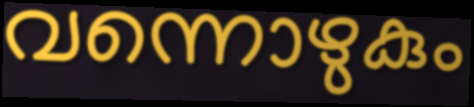
വന്നൊഴുകും